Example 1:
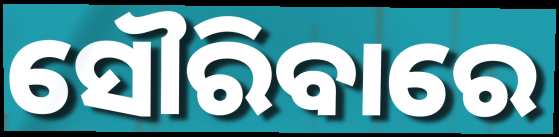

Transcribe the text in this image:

ସୌରିବାରେ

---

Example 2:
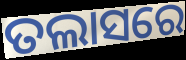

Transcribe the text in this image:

ତଲାସରେ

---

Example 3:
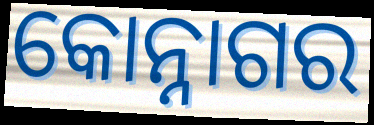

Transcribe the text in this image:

କୋନ୍ନାଗର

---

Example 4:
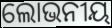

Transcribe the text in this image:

ଲୋଭନୀୟ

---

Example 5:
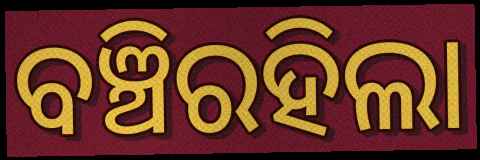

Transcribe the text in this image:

ବଞ୍ଚିରହିଲା